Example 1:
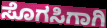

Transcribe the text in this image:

ಸೊಗಸಿಗಾಗಿ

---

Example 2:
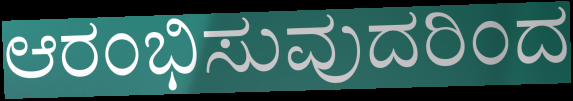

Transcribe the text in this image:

ಆರಂಭಿಸುವುದರಿಂದ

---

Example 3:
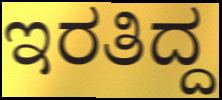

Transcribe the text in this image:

ಇರತಿದ್ದ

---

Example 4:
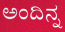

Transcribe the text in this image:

ಅಂದಿನ್ನ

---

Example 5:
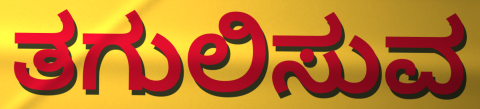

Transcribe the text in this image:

ತಗುಲಿಸುವ